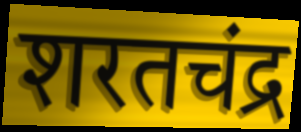
शरतचंद्र